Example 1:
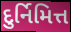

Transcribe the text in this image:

દુર્નિમિત્ત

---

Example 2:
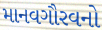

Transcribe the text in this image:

માનવગૌરવનો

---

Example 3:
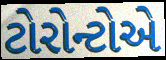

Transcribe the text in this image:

ટોરોન્ટોએ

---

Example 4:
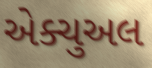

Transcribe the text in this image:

એક્ચુઅલ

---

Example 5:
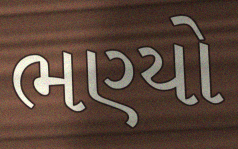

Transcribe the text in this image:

ભણ્યો